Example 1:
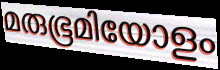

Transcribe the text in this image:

മരുഭൂമിയോളം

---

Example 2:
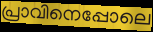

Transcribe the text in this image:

പ്രാവിനെപ്പോലെ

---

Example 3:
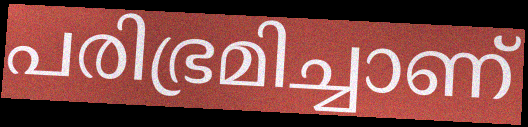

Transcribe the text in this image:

പരിഭ്രമിച്ചാണ്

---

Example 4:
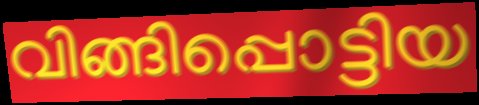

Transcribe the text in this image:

വിങ്ങിപ്പൊട്ടിയ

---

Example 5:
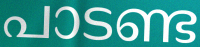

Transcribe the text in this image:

പാടണ്ട